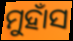
ମୁହାଁସ